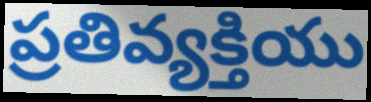
ప్రతివ్యక్తియు